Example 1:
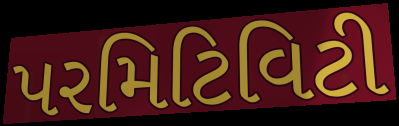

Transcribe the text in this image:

પરમિટિવિટી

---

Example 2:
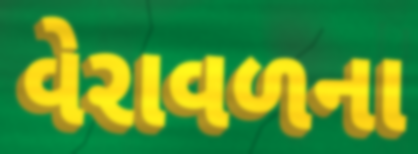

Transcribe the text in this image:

વેરાવળના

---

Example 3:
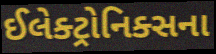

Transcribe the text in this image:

ઈલેક્ટ્રોનિક્સના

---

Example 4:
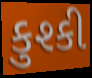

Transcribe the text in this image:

કુશ્કી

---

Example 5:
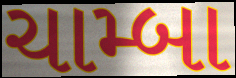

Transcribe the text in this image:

ચામ્બા